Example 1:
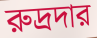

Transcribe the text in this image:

রুদ্রদার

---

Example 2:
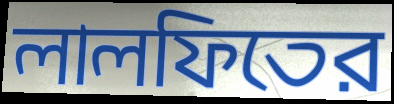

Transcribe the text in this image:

লালফিতের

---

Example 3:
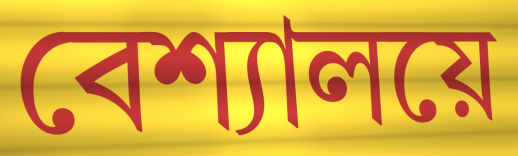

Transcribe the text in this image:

বেশ্যালয়ে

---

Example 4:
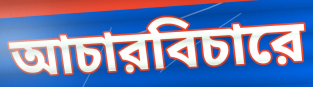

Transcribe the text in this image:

আচারবিচারে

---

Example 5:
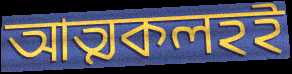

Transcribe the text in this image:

আত্মকলহই